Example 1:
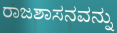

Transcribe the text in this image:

ರಾಜಶಾಸನವನ್ನು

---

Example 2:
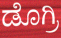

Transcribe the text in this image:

ಡೊಗ್ರಿ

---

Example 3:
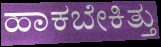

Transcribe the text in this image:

ಹಾಕಬೇಕಿತ್ತು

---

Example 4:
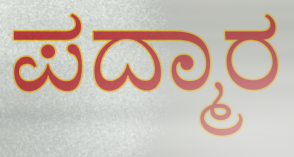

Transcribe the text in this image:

ಪದ್ಮಾರ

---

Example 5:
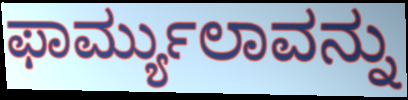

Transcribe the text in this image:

ಫಾರ್ಮ್ಯುಲಾವನ್ನು